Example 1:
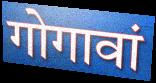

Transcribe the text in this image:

गोगावां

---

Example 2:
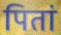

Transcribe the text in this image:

पितां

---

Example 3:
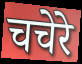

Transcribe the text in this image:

चचेरे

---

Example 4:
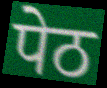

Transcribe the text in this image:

पेठ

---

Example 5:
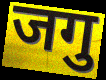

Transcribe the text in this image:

जगु